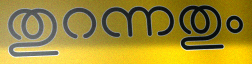
തുറന്നതും